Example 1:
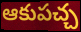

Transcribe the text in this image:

ఆకుపచ్చ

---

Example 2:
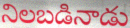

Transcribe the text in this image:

నిలబడినాడు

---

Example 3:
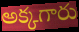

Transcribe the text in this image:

అక్కగారు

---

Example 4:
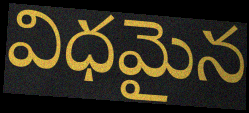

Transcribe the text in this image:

విధమైన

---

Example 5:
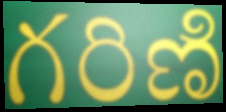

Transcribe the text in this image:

గరిణి